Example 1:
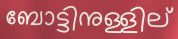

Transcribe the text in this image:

ബോട്ടിനുള്ളില്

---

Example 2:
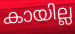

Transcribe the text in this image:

കായില്ല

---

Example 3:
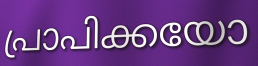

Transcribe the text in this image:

പ്രാപിക്കയോ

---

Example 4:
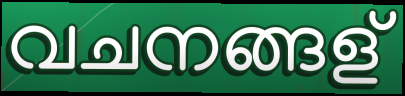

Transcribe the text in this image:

വചനങ്ങള്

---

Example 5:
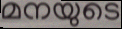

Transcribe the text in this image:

മനയുടെ